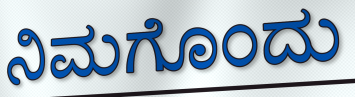
ನಿಮಗೊಂದು